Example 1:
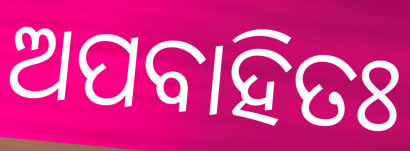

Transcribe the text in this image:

ଅପବାହିତଃ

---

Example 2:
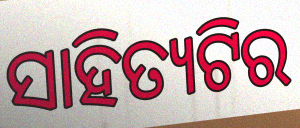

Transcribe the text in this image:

ସାହିତ୍ୟଟିର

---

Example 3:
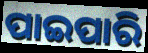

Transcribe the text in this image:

ପାଇପାରି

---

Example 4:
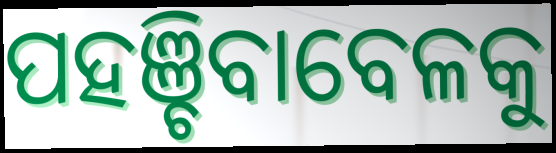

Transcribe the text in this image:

ପହଞ୍ଚିବାବେଳକୁ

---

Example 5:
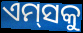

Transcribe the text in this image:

ଏମ୍‌ସକୁ